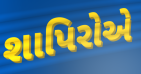
શાપિરોએ